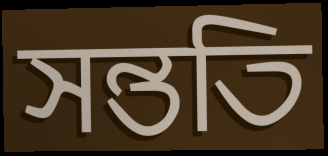
সন্ততি